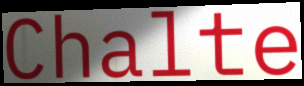
Chalte